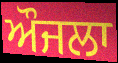
ਔਜਲਾ